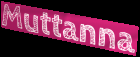
Muttanna